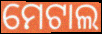
ମେଟାଲ